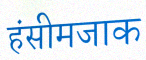
हंसीमजाक